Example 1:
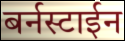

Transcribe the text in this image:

बर्नस्टाईन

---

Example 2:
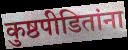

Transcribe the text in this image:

कुष्ठपीडितांना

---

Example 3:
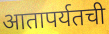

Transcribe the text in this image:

आतापर्यतची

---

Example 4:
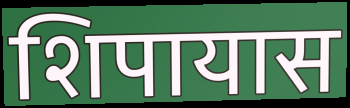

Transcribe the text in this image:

शिपायास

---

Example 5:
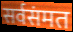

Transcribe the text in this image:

सर्वसंमत